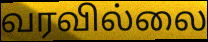
வரவில்லை